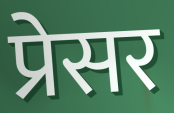
प्रेसर